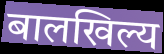
बालखिल्य